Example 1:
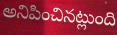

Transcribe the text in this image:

అనిపించినట్లుంది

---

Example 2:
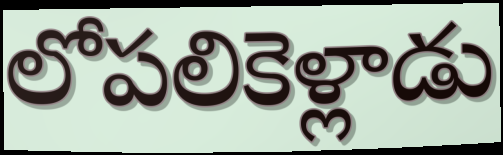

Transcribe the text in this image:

లోపలికెళ్లాడు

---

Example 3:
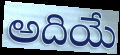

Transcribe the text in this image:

అదియే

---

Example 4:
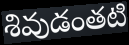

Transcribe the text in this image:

శివుడంతటి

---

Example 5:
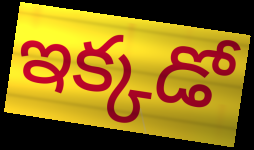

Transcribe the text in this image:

ఇక్కడో